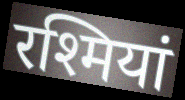
रश्मियां